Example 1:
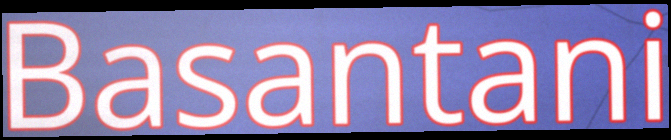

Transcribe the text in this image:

Basantani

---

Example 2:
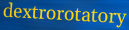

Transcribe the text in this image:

dextrorotatory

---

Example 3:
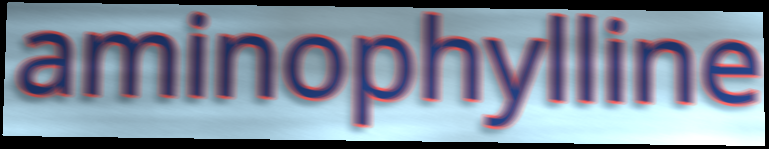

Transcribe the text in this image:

aminophylline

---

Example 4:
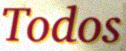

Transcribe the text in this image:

Todos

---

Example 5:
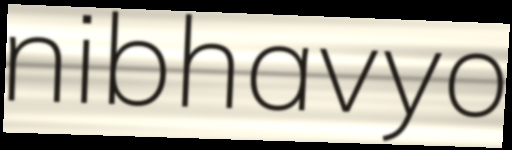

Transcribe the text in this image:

nibhavyo